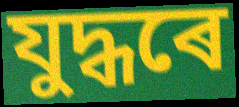
যুদ্ধৰে